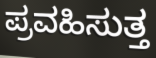
ಪ್ರವಹಿಸುತ್ತ